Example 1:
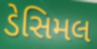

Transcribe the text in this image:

ડેસિમલ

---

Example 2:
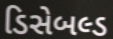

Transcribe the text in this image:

ડિસેબલ્ડ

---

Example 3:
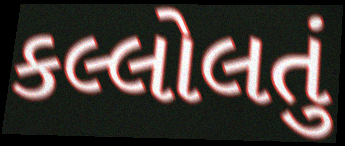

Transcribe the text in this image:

કલ્લોલતું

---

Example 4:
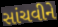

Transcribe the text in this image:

સાંચવીને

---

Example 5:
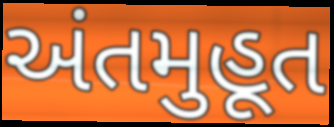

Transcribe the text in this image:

અંતમુહૂત